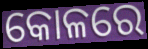
କୋଳରେ